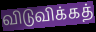
விடுவிக்கத்